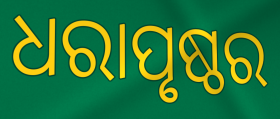
ଧରାପୃଷ୍ଠର